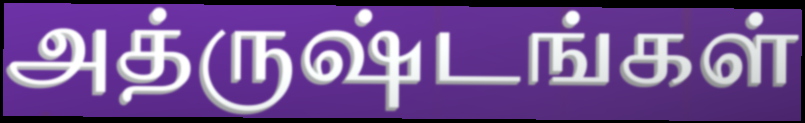
அத்ருஷ்டங்கள்